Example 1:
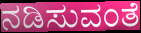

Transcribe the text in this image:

ನಡಿಸುವಂತೆ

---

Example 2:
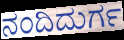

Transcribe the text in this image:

ನಂದಿದುರ್ಗ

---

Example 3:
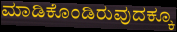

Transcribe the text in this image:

ಮಾಡಿಕೊಂಡಿರುವುದಕ್ಕೂ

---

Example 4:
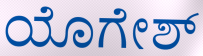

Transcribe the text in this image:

ಯೊಗೇಶ್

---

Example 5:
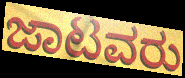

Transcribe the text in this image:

ಜಾಟವರು